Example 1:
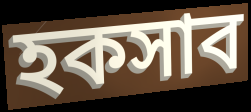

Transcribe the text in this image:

হকসাব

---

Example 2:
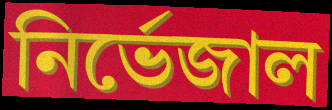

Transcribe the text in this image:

নির্ভেজাল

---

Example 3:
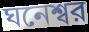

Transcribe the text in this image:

ঘনেশ্বর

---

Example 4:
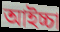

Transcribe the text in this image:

আইচ্চা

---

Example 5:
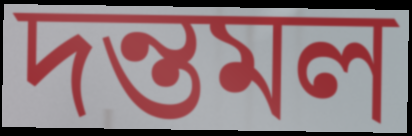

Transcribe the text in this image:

দন্তমল